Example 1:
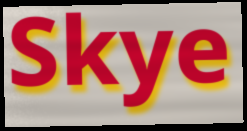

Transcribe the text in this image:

Skye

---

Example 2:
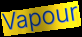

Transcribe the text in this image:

Vapour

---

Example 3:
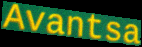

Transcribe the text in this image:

Avantsa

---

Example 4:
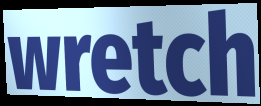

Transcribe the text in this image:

wretch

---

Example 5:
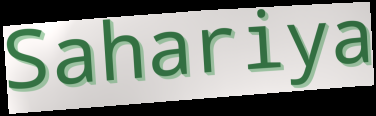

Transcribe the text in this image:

Sahariya